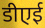
डीएई